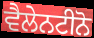
ਵੈਲੇਨਟੀਨੋ